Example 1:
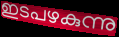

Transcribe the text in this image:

ഇടപഴകുന്നു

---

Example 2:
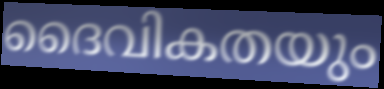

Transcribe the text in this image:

ദൈവികതയും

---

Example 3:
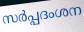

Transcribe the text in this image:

സർപ്പദംശന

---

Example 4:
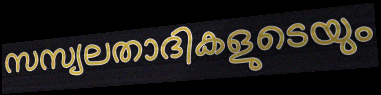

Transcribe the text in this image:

സസ്യലതാദികളുടെയും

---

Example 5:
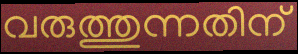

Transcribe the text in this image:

വരുത്തുന്നതിന്